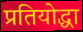
प्रतियोद्धा